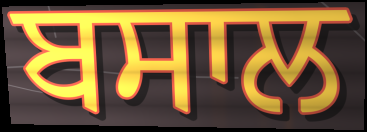
ਬਸਾਲ